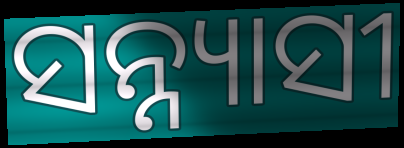
ସନ୍ନ୍ୟାସୀ